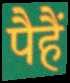
पैहैं